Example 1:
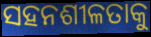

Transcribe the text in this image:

ସହନଶୀଳତାକୁ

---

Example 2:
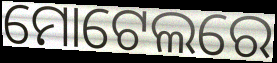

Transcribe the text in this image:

ମୋଟେଲରେ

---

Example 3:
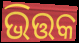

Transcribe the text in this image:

ଭିତ୍ତକ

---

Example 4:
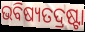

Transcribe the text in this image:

ଭବିଷ୍ୟତଦ୍ରଷ୍ଟା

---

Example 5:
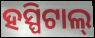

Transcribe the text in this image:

ହସ୍ପିଟାଲ୍